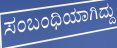
ಸಂಬಂಧಿಯಾಗಿದ್ದು